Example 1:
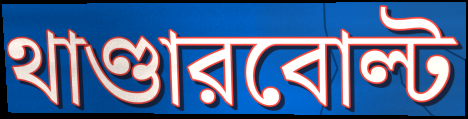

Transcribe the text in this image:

থাণ্ডারবোল্ট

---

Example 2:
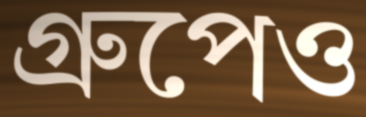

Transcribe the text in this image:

গ্রুপেও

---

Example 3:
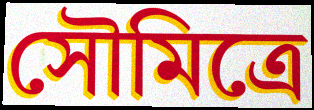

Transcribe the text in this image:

সৌমিত্রে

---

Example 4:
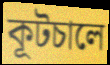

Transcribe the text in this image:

কূটচালে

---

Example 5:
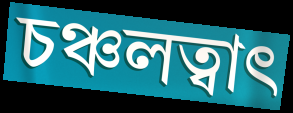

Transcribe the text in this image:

চঞ্চলত্বাৎ